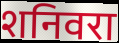
शनिवरा